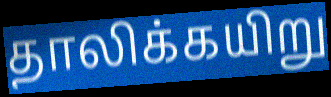
தாலிக்கயிறு